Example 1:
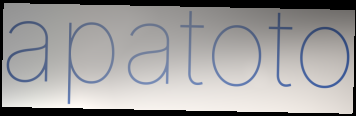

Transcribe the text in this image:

apatoto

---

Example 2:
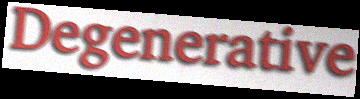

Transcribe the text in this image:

Degenerative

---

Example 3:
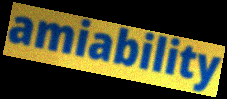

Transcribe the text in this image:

amiability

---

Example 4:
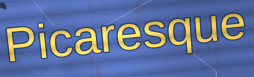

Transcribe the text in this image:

Picaresque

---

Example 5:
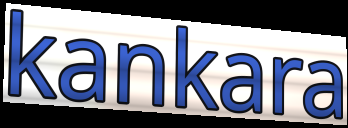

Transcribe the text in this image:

kankara